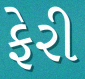
ફેરી